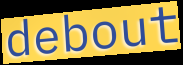
debout